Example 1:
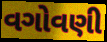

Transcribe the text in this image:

વગોવણી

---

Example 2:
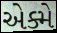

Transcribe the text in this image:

એક્મે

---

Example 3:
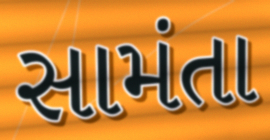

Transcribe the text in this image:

સામંતા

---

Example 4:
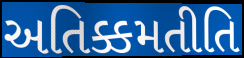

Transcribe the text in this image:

અતિક્કમતીતિ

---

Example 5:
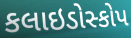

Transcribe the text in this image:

કલાઇડોસ્કોપ